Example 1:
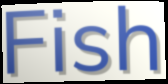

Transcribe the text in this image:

Fish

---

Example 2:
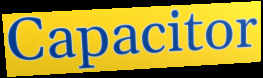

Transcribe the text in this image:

Capacitor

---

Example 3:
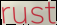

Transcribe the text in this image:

rust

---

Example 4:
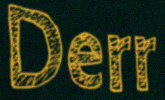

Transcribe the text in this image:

Derr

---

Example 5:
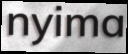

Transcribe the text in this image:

nyima